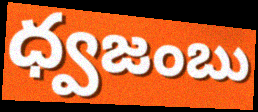
ధ్వజంబు